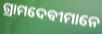
ଗ୍ରାମଦେବୀମାନେ